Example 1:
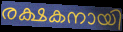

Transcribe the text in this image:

രക്ഷകനായി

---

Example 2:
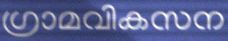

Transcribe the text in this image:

ഗ്രാമവികസന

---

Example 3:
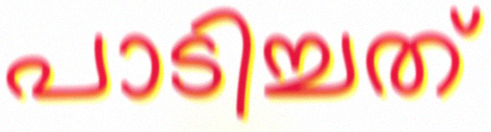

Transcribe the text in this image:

പാടിച്ചത്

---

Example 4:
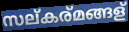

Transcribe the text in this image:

സല്കര്മങ്ങള്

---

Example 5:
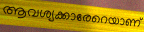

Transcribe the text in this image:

ആവശ്യക്കാരേറെയാണ്